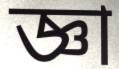
জ্ঞা